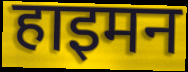
हाइमन